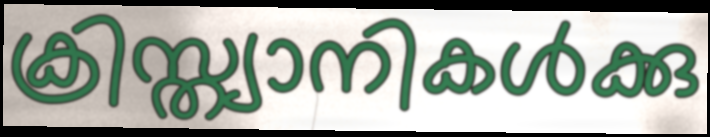
ക്രിസ്ത്യാനികൾക്കു